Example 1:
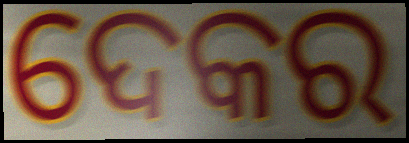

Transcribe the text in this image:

ଦେକର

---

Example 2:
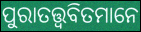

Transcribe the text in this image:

ପୁରାତତ୍ତ୍ୱବିତମାନେ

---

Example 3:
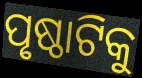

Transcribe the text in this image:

ପୃଷ୍ଠାଟିକୁ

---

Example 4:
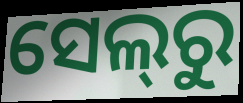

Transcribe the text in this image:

ସେଲ୍‌ରୁ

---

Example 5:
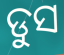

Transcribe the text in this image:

ଡୁସ